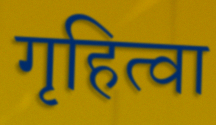
गृहित्वा